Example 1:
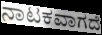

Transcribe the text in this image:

ನಾಟಕವಾಗದೆ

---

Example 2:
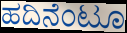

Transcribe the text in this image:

ಹದಿನೆಂಟೂ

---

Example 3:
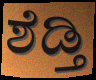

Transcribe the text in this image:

ಶೆಡ್ತಿ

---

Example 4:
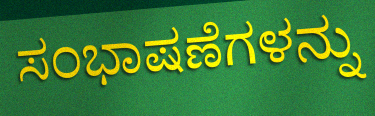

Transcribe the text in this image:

ಸಂಭಾಷಣೆಗಳನ್ನು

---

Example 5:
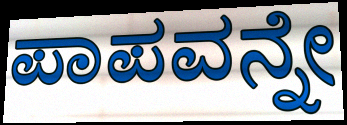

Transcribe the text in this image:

ಪಾಪವನ್ನೇ